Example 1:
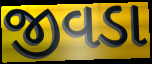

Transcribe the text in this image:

જીવડા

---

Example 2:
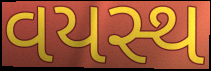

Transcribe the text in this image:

વયસ્થ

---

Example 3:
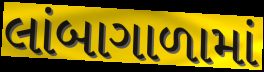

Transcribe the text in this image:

લાંબાગાળામાં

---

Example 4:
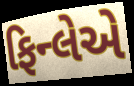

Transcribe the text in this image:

ફિન્લેએ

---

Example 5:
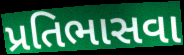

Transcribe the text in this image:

પ્રતિભાસવા